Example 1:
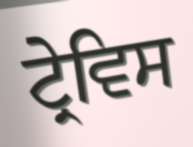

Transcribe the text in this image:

ਟ੍ਰੇਵਿਸ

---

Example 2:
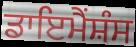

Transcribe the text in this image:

ਡਾਇਮੈਂਸ਼ੰਸ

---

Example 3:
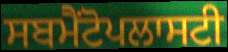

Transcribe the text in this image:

ਸਬਮੈਂਟੋਪਲਾਸਟੀ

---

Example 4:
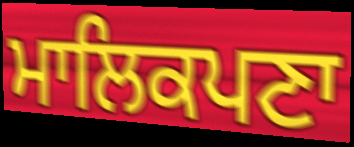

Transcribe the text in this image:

ਮਾਲਿਕਪਣਾ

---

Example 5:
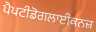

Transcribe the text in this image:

ਪੈਪਟੀਡੋਗਲਾਈਕਨਜ਼